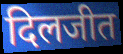
दिलजीत